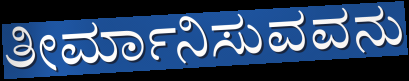
ತೀರ್ಮಾನಿಸುವವನು